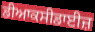
ਡੀਆਕਸੀਡਾਈਜ਼